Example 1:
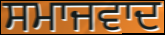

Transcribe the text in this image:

ਸਮਾਜਵਾਦ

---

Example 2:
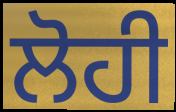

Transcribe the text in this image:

ਲੋਹੀ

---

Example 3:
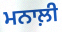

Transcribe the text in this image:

ਮਨਾਲ਼ੀ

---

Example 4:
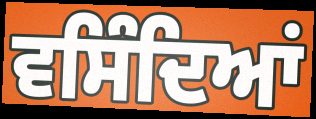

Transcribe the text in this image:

ਵਸਿੰਦਿਆਂ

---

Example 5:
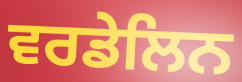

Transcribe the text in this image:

ਵਰਡੇਲਿਨ